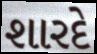
શારદે